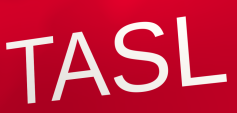
TASL